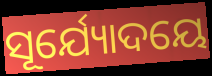
ସୂର୍ଯ୍ୟୋଦୟେ